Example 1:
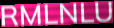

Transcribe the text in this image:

RMLNLU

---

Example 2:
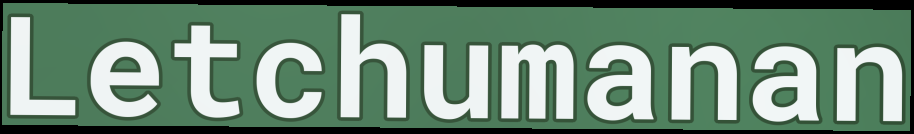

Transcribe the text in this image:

Letchumanan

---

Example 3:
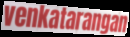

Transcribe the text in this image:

venkatarangan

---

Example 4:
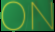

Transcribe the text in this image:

ON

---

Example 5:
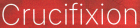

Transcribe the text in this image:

Crucifixion